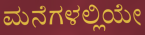
ಮನೆಗಳಲ್ಲಿಯೇ